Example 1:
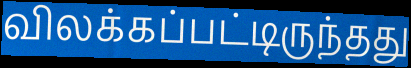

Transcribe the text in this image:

விலக்கப்பட்டிருந்தது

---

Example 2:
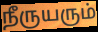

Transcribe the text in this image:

நீருயரும்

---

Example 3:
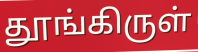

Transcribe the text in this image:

தூங்கிருள்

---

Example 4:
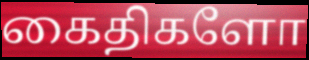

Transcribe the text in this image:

கைதிகளோ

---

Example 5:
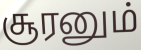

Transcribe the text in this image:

சூரனும்